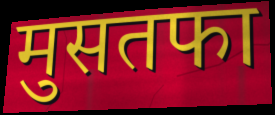
मुसतफा